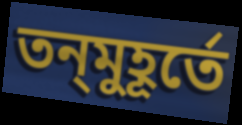
তন্‌মুহূর্তে